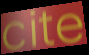
cite